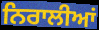
ਨਿਰਾਲੀਆਂ